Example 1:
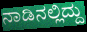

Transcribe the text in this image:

ನಾಡಿನಲ್ಲಿದ್ದು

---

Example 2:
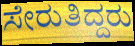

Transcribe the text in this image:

ಸೇರುತಿದ್ದರು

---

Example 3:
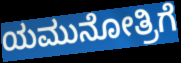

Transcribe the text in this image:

ಯಮುನೋತ್ರಿಗೆ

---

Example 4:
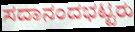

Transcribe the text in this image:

ಸದಾನಂದಭಟ್ಟರು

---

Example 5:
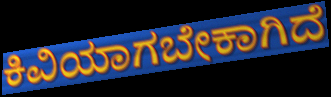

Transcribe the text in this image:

ಕಿವಿಯಾಗಬೇಕಾಗಿದೆ